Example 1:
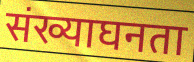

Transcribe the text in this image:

संख्याघनता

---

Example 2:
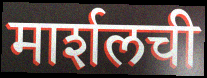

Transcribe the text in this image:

मार्शलची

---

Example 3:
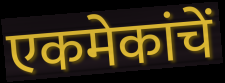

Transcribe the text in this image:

एकमेकांचें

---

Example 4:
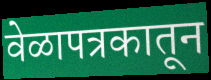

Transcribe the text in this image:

वेळापत्रकातून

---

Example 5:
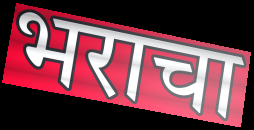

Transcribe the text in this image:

भराचा